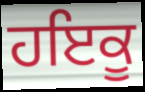
ਹਇਕੂ